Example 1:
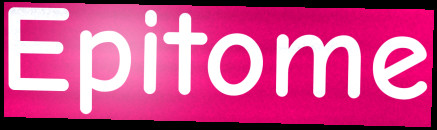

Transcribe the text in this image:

Epitome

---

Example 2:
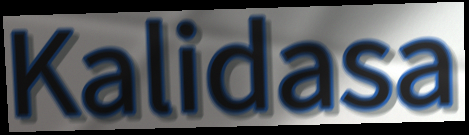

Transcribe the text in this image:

Kalidasa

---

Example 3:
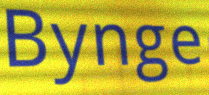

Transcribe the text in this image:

Bynge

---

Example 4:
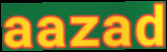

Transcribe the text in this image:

aazad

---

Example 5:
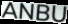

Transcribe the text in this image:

ANBU